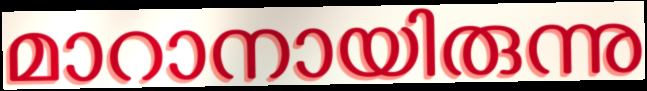
മാറാനായിരുന്നു